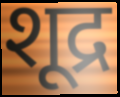
शूद्र